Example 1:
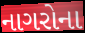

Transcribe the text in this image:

નાગરોના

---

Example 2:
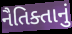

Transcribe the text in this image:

નૈતિક્તાનું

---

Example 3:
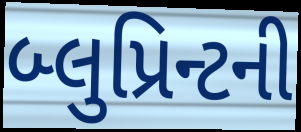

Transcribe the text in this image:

બ્લુપ્રિન્ટની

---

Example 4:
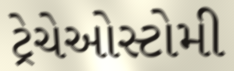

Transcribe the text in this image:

ટ્રેચેઓસ્ટોમી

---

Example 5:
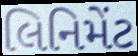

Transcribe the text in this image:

લિનિમેંટ